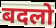
बदलो